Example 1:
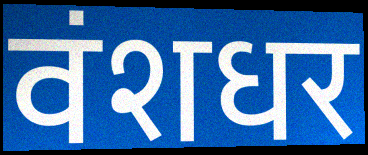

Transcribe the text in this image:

वंशधर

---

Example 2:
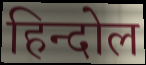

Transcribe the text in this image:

हिन्दोल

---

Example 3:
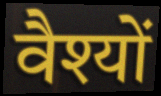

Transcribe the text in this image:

वैश्‍यों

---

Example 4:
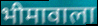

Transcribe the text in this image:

भीमावाला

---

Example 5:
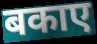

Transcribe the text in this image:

बकाए